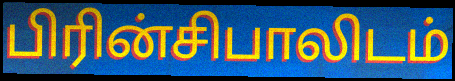
பிரின்சிபாலிடம்